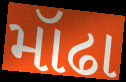
મૉઢા